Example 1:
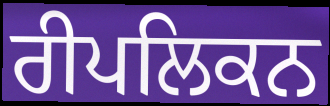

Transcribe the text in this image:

ਰੀਪਲਿਕਨ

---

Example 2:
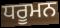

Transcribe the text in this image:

ਧਰੂਮਨ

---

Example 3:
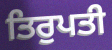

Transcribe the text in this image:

ਤਿਰੁਪਤੀ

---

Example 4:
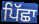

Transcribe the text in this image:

ਪਿੱਛਾ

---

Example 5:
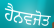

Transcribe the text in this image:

ਹੈਨਵਜੋਤ